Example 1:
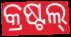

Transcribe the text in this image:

କ୍ରଷ୍ଟଲ୍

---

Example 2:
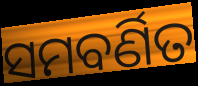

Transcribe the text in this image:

ସମବର୍ଣିତ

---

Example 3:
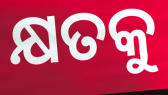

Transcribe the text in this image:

କ୍ଷତକୁ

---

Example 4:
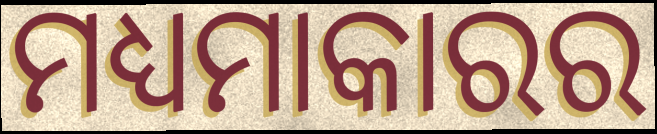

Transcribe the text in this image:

ମଧ୍ୟମାକାରର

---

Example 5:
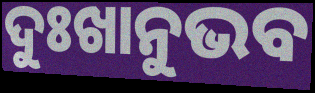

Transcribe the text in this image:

ଦୁଃଖାନୁଭବ